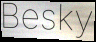
Besky